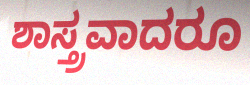
ಶಾಸ್ತ್ರವಾದರೂ